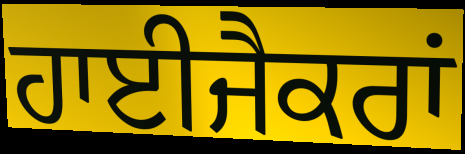
ਹਾਈਜੈਕਰਾਂ